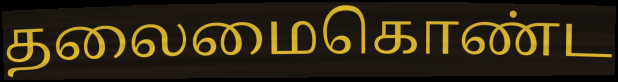
தலைமைகொண்ட